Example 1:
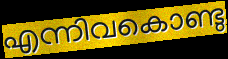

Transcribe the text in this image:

എന്നിവകൊണ്ടു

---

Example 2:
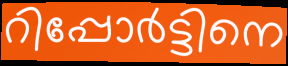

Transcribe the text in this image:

റിപ്പോർട്ടിനെ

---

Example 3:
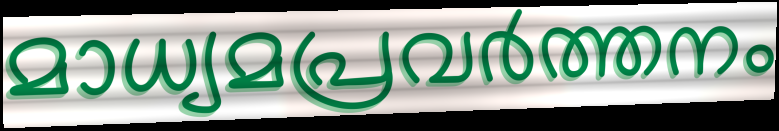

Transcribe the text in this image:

മാധ്യമപ്രവർത്തനം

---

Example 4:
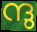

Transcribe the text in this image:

ന്ദു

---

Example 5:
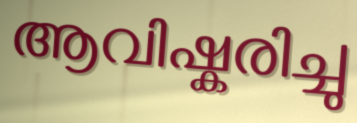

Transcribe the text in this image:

ആവിഷ്കരിച്ചു